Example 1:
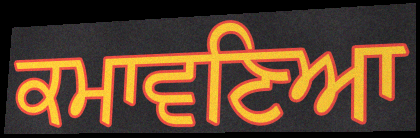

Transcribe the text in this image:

ਕਮਾਵਣਿਆ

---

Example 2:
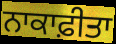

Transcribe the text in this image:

ਨਾਕਾਫ਼ੀਤਾ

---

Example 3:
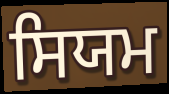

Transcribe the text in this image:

ਸਿਯਮ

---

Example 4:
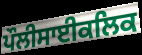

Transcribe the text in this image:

ਪੌਲੀਸਾਈਕਲਿਕ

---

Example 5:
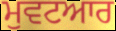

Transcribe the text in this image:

ਮੁਵਟਆਰ